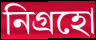
নিগ্রহো